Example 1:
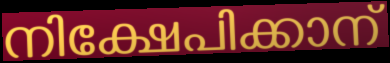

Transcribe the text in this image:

നിക്ഷേപിക്കാന്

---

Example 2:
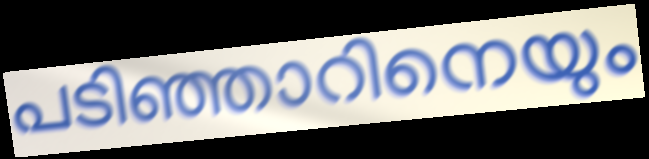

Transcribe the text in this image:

പടിഞ്ഞാറിനെയും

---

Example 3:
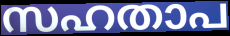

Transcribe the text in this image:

സഹതാപ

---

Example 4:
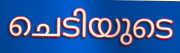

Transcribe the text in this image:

ചെടിയുടെ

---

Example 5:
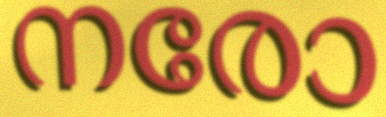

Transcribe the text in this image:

നരോ